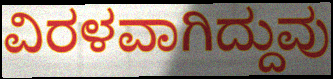
ವಿರಳವಾಗಿದ್ದುವು